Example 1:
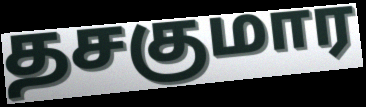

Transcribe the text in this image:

தசகுமார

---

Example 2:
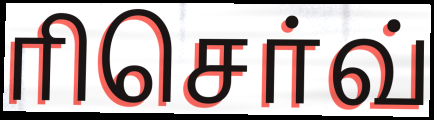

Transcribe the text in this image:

ரிசெர்வ்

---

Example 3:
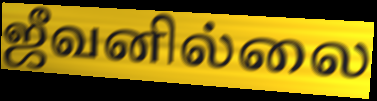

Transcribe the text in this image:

ஜீவனில்லை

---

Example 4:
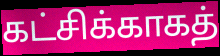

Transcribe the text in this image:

கட்சிக்காகத்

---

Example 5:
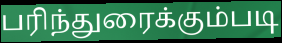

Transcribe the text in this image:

பரிந்துரைக்கும்படி